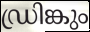
ഡ്രിങ്കും